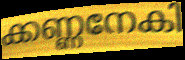
ക്കണ്ണനേകി